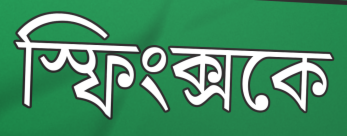
স্ফিংক্সকে